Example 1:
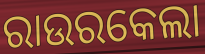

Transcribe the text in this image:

ରାଉରକେଲା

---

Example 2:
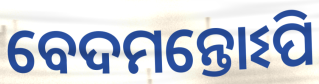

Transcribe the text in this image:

ବେଦମନ୍ତୋଽପି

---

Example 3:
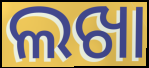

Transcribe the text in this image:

ଲଖା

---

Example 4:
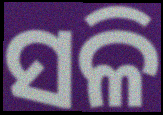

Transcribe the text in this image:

ସଳି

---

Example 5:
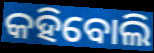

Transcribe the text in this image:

କହିବୋଲି